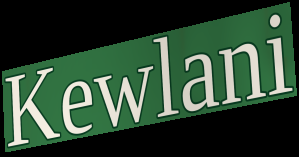
Kewlani